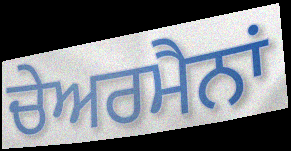
ਚੇਅਰਮੈਨਾਂ